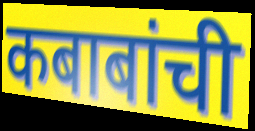
कबाबांची